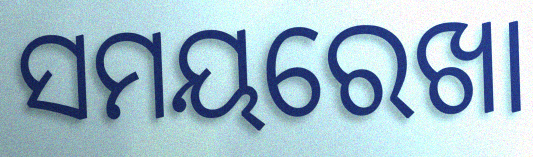
ସମୟରେଖା